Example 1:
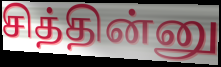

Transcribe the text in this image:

சித்தின்னு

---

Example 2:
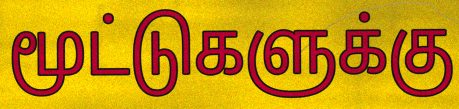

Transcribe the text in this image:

மூட்டுகளுக்கு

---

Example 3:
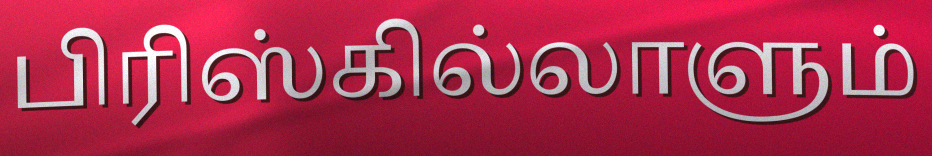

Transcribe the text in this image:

பிரிஸ்கில்லாளும்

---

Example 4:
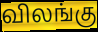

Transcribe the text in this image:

விலங்கு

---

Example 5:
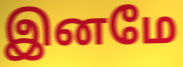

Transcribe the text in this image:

இனமே